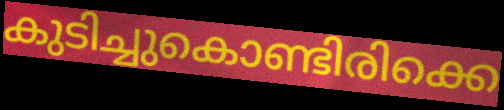
കുടിച്ചുകൊണ്ടിരിക്കെ